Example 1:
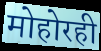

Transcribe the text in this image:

मोहोरही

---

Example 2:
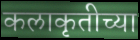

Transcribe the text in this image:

कलाकृतीच्या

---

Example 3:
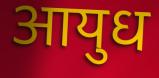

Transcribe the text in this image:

आयुध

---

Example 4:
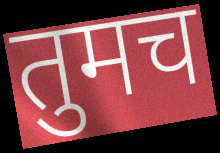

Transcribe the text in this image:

तुमच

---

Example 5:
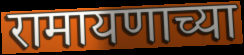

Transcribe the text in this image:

रामायणाच्या